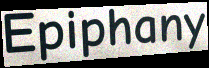
Epiphany